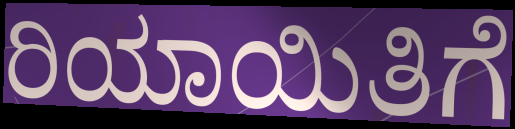
ರಿಯಾಯಿತಿಗೆ